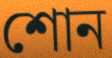
শোন